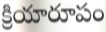
క్రియారూపం